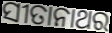
ସୀତାନାଥର